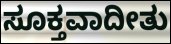
ಸೂಕ್ತವಾದೀತು